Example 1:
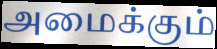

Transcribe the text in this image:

அமைக்கும்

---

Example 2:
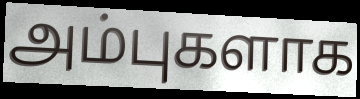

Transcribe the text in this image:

அம்புகளாக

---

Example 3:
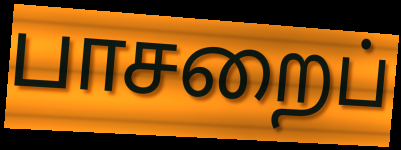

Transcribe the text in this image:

பாசறைப்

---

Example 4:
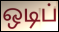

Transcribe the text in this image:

ஒடிப்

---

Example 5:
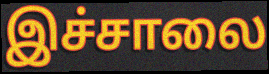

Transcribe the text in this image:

இச்சாலை